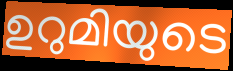
ഉറുമിയുടെ